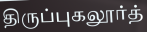
திருப்புகலூர்த்